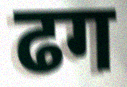
ढग